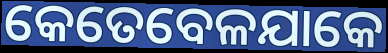
କେତେବେଳଯାକେ